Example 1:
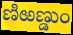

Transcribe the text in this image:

ణిఱణ్డుం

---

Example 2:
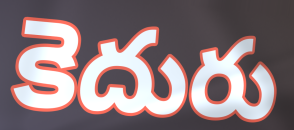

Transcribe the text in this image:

కెదురు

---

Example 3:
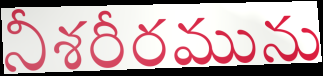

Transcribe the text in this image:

నీశరీరమును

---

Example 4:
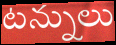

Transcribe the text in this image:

టన్నులు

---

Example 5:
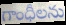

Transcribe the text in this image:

గాంధీలను